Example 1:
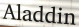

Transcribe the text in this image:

Aladdin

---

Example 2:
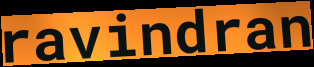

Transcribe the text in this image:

ravindran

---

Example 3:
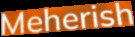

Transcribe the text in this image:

Meherish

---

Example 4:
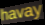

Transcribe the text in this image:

havay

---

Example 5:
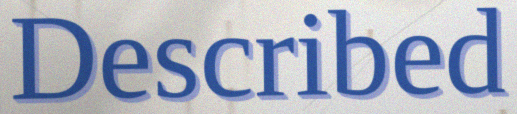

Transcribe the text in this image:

Described